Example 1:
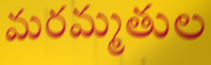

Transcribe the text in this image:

మరమ్మతుల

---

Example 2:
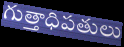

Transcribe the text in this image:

గుత్తాధిపతులు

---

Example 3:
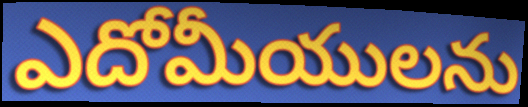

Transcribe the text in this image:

ఎదోమీయులను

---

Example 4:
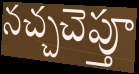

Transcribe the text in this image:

నచ్చచెప్తూ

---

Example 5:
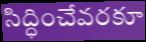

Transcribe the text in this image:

సిద్ధించేవరకూ